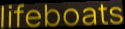
lifeboats